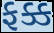
ફક્ક